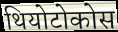
थियोटोकोस